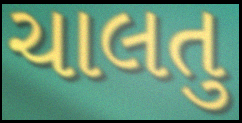
ચાલતુ